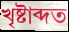
খৃষ্টাব্দত